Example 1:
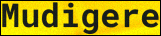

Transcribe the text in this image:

Mudigere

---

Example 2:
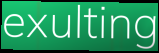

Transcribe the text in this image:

exulting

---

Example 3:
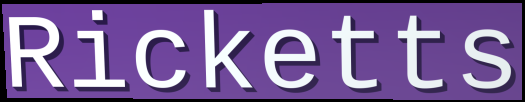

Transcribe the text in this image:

Ricketts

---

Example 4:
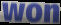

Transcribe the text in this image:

won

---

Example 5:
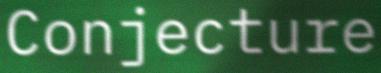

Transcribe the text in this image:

Conjecture